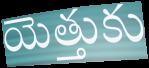
యెత్తుకు